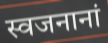
स्वजनानां